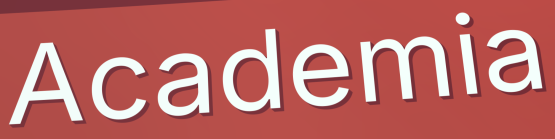
Academia